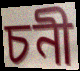
চনী